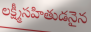
లక్ష్మీసహితుడనైన